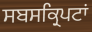
ਸਬਸਕ੍ਰਿਪਟਾਂ